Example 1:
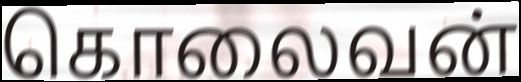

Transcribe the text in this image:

கொலைவன்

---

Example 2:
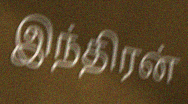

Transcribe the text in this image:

இந்திரன்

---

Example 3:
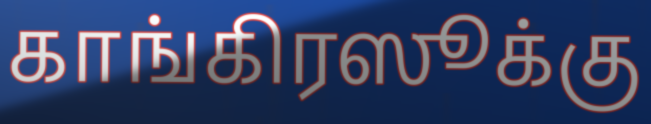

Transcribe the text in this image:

காங்கிரஸூக்கு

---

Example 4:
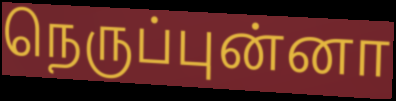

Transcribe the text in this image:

நெருப்புன்னா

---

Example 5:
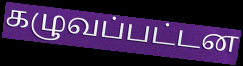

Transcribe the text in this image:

கழுவப்பட்டன